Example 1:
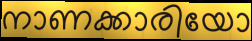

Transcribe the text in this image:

നാണക്കാരിയോ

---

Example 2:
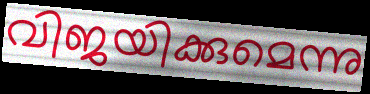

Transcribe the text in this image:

വിജയിക്കുമെന്നു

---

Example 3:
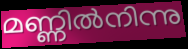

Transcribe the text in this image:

മണ്ണിൽനിന്നു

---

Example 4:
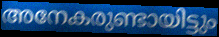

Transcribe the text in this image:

അനേകരുണ്ടായിട്ടും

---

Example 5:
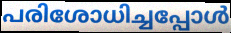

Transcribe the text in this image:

പരിശോധിച്ചപ്പോൾ